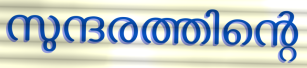
സുന്ദരത്തിന്റെ